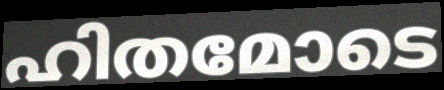
ഹിതമോടെ